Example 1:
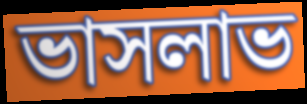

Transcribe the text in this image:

ভাসলাভ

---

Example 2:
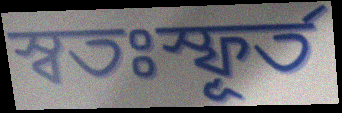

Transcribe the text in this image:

স্বতঃস্ফূর্ত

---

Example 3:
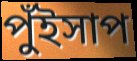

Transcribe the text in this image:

পুঁইসাপ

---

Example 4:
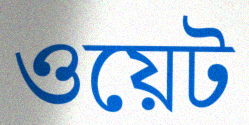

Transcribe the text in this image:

ওয়েট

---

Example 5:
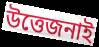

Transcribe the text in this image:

উত্তেজনাই